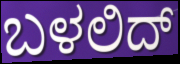
ಬಳಲಿದ್